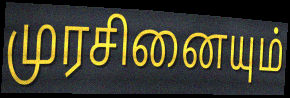
முரசினையும்